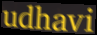
udhavi